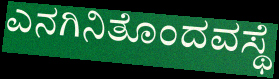
ಎನಗಿನಿತೊಂದವಸ್ಥೆ